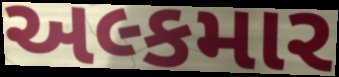
અલ્કમાર